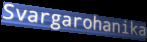
Svargarohanika